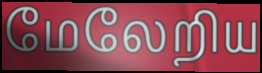
மேலேறிய